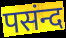
पसंन्द